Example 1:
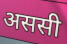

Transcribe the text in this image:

अससी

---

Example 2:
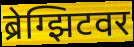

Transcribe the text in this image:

ब्रेग्झिटवर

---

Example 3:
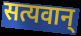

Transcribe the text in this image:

सत्यवान्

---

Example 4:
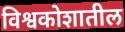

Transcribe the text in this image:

विश्वकोशातील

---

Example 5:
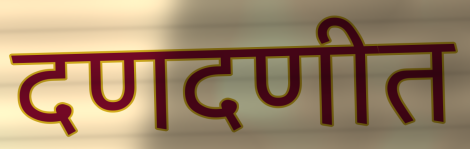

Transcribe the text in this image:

दणदणीत